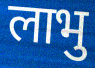
लाभु